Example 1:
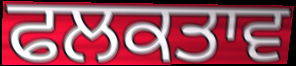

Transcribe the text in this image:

ਫਲਕਤਾਵ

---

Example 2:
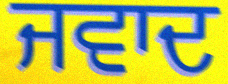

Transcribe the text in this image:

ਜਵਾਦ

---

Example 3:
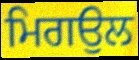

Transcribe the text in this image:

ਮਿਗਉਲ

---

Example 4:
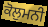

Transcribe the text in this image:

ਕੋਲੁਮਨੀ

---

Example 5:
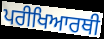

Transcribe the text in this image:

ਪਰੀਖਿਆਰਥੀ